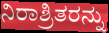
ನಿರಾಶ್ರಿತರನ್ನು